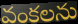
వంకలను